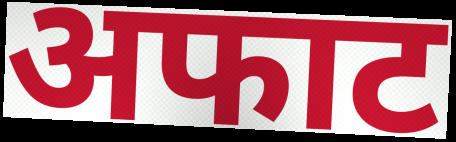
अफाट